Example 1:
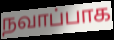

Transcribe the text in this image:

நவாப்பாக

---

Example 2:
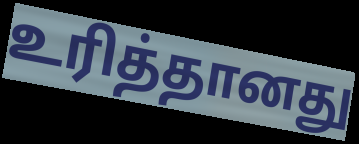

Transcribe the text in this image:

உரித்தானது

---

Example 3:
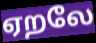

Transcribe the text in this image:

ஏறலே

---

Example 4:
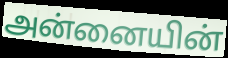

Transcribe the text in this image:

அன்னையின்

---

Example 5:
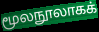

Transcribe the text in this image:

மூலநூலாகக்